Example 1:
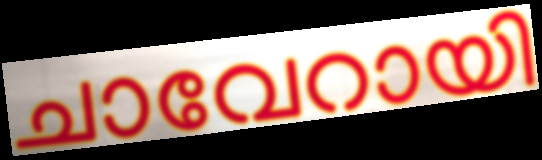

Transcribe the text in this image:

ചാവേറായി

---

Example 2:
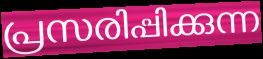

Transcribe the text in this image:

പ്രസരിപ്പിക്കുന്ന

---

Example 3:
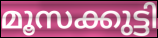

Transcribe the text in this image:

മൂസക്കുട്ടി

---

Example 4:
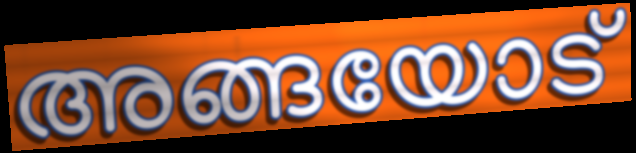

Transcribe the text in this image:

അങ്ങയോട്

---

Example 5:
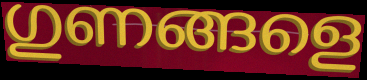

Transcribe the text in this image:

ഗുണങ്ങളെ